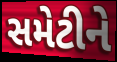
સમેટીને